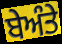
ਬੇਅੰਤੇ